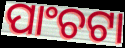
ପାଂଚଟା